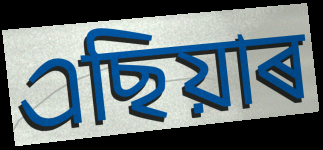
এছিয়াৰ